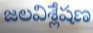
జలవిశ్లేషణ